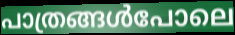
പാത്രങ്ങൾപോലെ